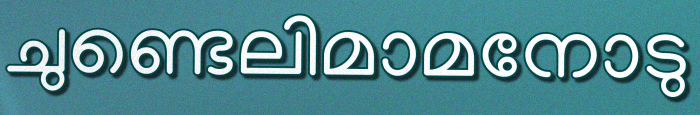
ചുണ്ടെലിമാമനോടു